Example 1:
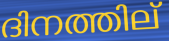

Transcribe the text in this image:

ദിനത്തില്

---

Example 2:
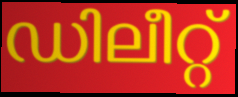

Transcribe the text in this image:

ഡിലീറ്റ്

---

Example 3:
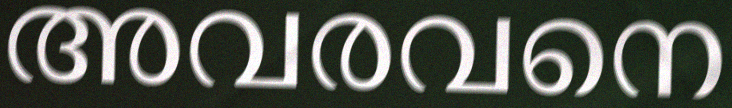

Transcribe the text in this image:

അവരവനെ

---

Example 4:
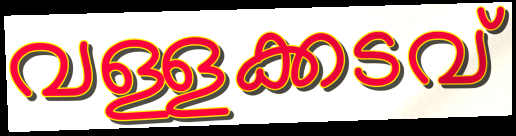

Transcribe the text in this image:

വള്ളക്കടവ്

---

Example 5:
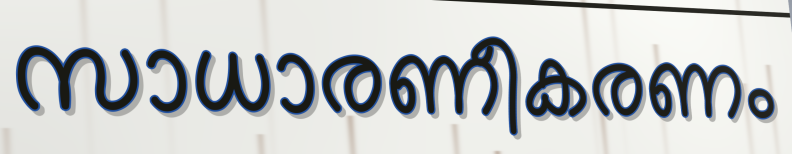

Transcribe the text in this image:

സാധാരണീകരണം